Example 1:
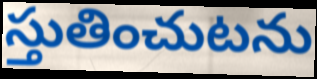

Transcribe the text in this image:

స్తుతించుటను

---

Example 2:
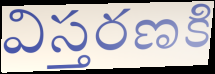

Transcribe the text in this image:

విస్తరణకి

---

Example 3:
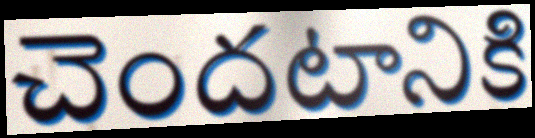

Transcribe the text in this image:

చెందటానికి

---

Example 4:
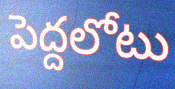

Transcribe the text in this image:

పెద్దలోటు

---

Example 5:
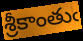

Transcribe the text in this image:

శ్రీకాంతుఁ